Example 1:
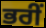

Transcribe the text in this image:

ਭਰੀਂ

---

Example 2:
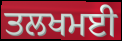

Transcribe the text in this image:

ਤਲਖਮਈ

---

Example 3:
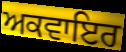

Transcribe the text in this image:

ਅਕਵਾਇਰ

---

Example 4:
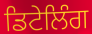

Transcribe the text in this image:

ਡਿਟੇਲਿੰਗ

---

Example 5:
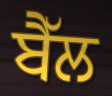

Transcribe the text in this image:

ਬੈੱਲ